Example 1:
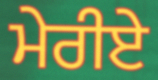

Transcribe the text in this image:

ਮੇਰੀਏ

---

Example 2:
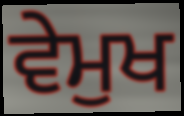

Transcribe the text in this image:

ਵੇਮੁਖ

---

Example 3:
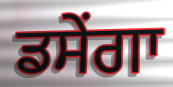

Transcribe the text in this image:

ਡਸੇਂਗਾ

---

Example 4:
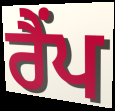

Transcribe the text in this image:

ਰੈਂਪ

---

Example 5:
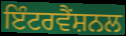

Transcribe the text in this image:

ਇੰਟਰਵੈਂਸ਼ਨਲ